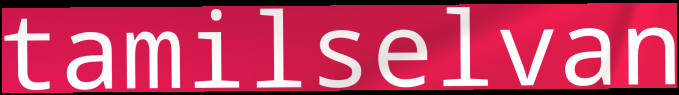
tamilselvan